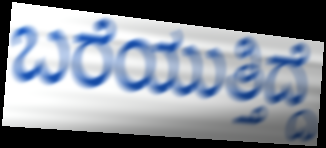
ಬರೆಯುತ್ತಿದ್ದೆ